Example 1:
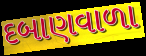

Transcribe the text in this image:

દબાણવાળા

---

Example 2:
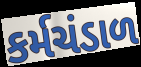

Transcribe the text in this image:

કર્મચંડાળ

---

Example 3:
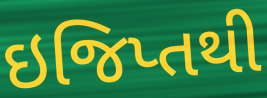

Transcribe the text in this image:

ઇજિપ્તથી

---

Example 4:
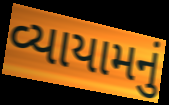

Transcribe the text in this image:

વ્યાયામનું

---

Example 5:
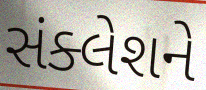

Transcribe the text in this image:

સંક્લેશને